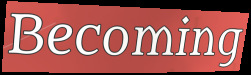
Becoming